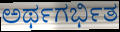
ಅರ್ಥಗರ್ಭಿತ